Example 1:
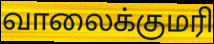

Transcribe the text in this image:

வாலைக்குமரி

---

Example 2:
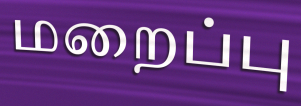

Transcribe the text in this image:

மறைப்பு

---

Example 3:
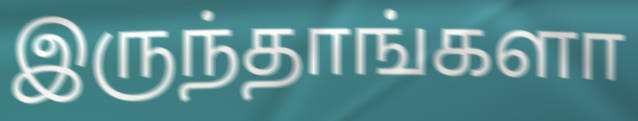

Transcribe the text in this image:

இருந்தாங்களா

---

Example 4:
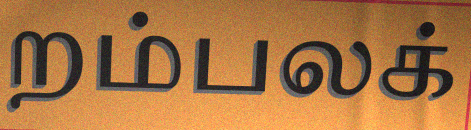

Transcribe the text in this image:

றம்பலக்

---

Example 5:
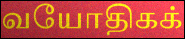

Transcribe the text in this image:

வயோதிகக்